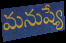
మనుష్యే